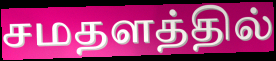
சமதளத்தில்